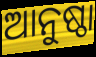
ଆନୁଷ୍ଠା